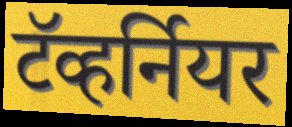
टॅव्हर्नियर